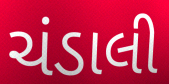
ચંડાલી